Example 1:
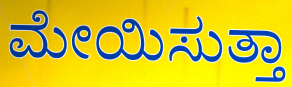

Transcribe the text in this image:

ಮೇಯಿಸುತ್ತಾ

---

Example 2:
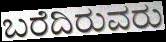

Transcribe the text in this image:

ಬರೆದಿರುವರು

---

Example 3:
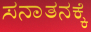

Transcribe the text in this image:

ಸನಾತನಕ್ಕೆ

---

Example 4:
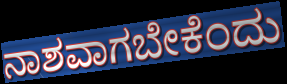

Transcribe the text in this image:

ನಾಶವಾಗಬೇಕೆಂದು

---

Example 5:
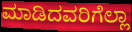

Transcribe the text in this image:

ಮಾಡಿದವರಿಗೆಲ್ಲಾ